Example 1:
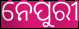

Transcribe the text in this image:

ନେପୁରୀ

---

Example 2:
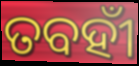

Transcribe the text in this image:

ତବହୀଁ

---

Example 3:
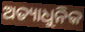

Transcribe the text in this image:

ଅତ୍ୟାଧୁନିକ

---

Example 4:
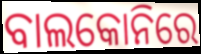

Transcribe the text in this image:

ବାଲକୋନିରେ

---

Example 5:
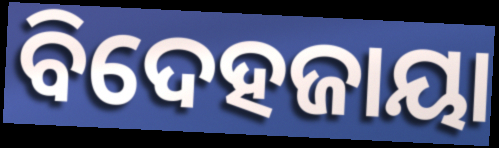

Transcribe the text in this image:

ବିଦେହଜାୟା